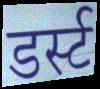
डर्स्ट